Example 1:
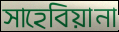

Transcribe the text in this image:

সাহেবিয়ানা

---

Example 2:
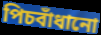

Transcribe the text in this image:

পিচবাঁধানো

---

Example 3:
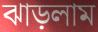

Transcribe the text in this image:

ঝাড়লাম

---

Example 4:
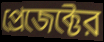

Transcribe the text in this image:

প্রেজেক্টের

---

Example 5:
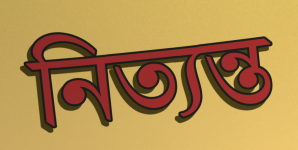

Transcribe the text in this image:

নিত্যন্ত